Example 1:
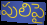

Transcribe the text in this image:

పులిపై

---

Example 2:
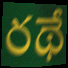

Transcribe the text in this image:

రథే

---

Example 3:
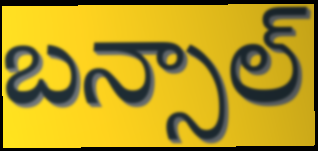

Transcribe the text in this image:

బన్సాల్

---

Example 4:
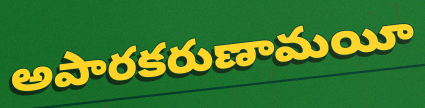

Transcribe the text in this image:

అపారకరుణామయీ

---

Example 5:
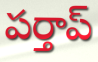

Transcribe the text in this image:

పర్తాప్